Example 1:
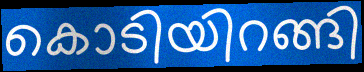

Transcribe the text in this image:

കൊടിയിറങ്ങി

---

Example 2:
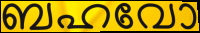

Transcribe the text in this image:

ബഹവോ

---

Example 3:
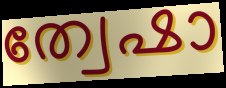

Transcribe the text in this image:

ത്വേഷാ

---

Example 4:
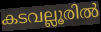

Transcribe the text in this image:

കടവല്ലൂരിൽ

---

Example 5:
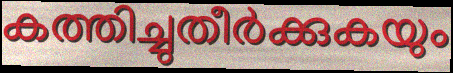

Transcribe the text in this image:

കത്തിച്ചുതീർക്കുകയും